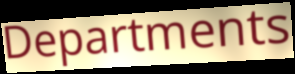
Departments